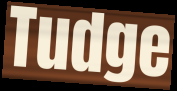
Tudge